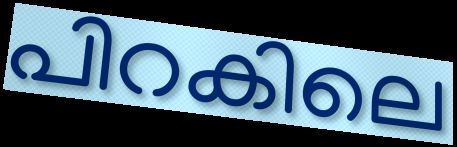
പിറകിലെ